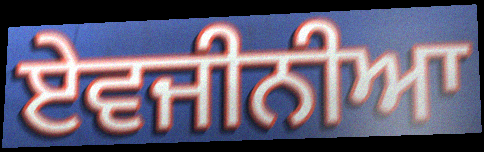
ਏਵਜੀਨੀਆ